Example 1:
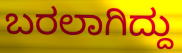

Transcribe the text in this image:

ಬರಲಾಗಿದ್ದು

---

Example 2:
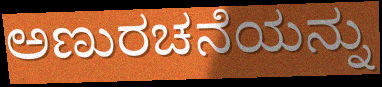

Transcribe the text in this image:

ಅಣುರಚನೆಯನ್ನು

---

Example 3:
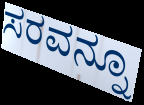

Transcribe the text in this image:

ಸರವನ್ನೂ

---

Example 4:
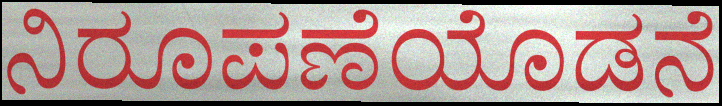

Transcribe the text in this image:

ನಿರೂಪಣೆಯೊಡನೆ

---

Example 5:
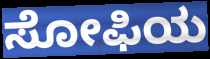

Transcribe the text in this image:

ಸೋಫಿಯ